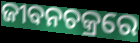
ଜୀବନଚକ୍ରରେ